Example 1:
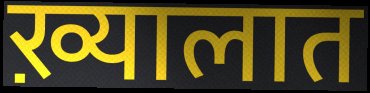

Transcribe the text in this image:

ख़्यालात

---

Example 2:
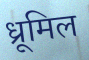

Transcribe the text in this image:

ध्रूमिल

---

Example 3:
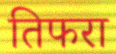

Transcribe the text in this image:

तिफरा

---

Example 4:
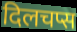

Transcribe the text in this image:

दिलचप्स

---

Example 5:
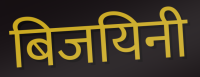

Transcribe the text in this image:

बिजयिनी